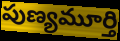
పుణ్యమూర్తి